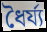
ধৈৰ্য্য